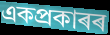
একপ্ৰকাৰৰ